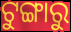
ଟୁଙ୍ଗାରୁ